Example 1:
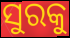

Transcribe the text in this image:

ସୁରକୁ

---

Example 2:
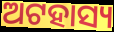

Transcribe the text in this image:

ଅଟହାସ୍ୟ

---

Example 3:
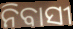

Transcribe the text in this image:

ନିବାସୀ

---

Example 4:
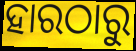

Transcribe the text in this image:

ହାରଠାରୁ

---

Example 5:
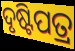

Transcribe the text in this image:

ଦୃଷ୍ଟିପତ୍ର